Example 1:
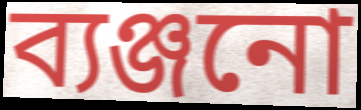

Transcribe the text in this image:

ব্যঞ্জনো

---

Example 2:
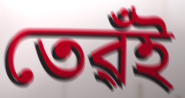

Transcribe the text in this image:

তেৱঁই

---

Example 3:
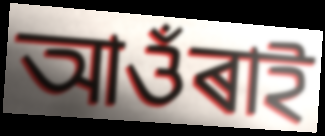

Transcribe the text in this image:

আওঁৰাই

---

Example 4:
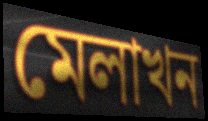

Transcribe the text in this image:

মেলাখন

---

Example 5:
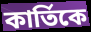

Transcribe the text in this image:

কাৰ্তিকে